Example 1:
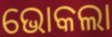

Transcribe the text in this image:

ଭୋକଲା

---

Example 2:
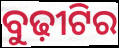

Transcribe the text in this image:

ବୁଢ଼ୀଟିର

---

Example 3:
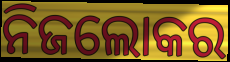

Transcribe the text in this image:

ନିଜଲୋକର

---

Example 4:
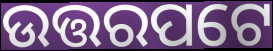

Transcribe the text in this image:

ଉତ୍ତରପଟେ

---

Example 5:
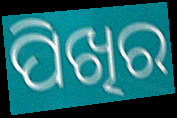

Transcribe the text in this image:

ପିଖିର